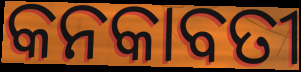
କନକାବତୀ